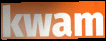
kwam